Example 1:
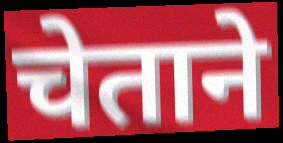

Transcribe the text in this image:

चेताने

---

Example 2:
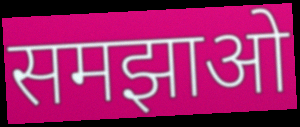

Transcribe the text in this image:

समझाओ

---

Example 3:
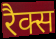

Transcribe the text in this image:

रैक्स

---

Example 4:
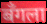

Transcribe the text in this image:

बँगला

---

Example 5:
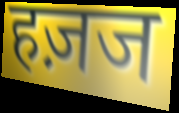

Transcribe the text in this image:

हज़ज